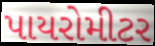
પાયરોમીટર